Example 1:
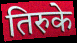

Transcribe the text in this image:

तिरुके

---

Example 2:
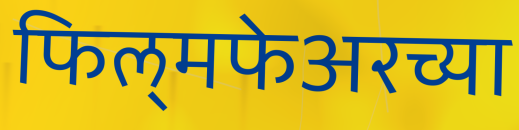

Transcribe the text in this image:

फिल्मफेअरच्या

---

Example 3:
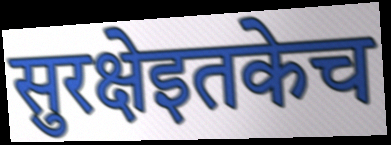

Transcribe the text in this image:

सुरक्षेइतकेच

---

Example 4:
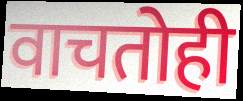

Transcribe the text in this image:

वाचतोही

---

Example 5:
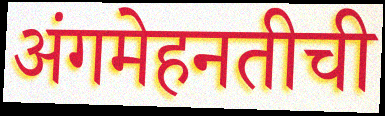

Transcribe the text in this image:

अंगमेहनतीची